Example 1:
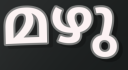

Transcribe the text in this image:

മഴു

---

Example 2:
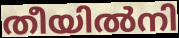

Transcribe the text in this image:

തീയിൽനി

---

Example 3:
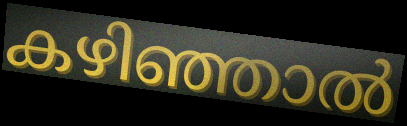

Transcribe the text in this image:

കഴിഞ്ഞാൽ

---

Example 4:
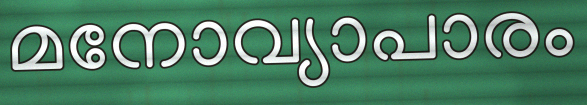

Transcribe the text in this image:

മനോവ്യാപാരം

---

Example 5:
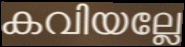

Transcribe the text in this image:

കവിയല്ലേ